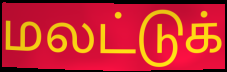
மலட்டுக்